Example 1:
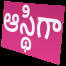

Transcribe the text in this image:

ఆస్థిగా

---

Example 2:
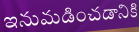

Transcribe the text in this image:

ఇనుమడించడానికి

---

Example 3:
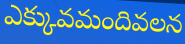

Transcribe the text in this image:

ఎక్కువమందివలన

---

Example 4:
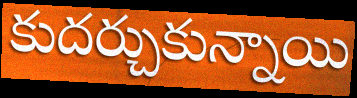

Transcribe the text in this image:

కుదర్చుకున్నాయి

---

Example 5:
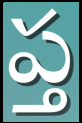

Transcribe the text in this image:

ప్త